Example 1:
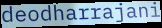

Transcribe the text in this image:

deodharrajani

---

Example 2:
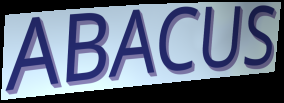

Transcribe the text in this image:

ABACUS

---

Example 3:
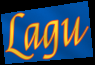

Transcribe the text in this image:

Lagu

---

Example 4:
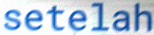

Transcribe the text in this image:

setelah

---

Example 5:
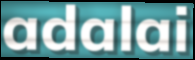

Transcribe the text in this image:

adalai